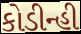
કોડીન્હી